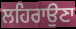
ਲਹਿਰਾਉਣਾ